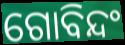
ଗୋବିନ୍ଦଂ